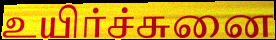
உயிர்ச்சுனை